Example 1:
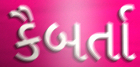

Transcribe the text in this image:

કૈબર્તા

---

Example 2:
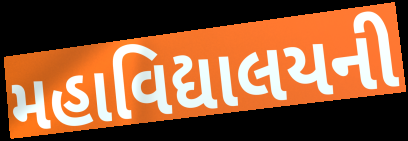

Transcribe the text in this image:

મહાવિદ્યાલયની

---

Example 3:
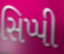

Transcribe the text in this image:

સિપ્પી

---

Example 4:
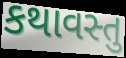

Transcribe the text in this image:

કથાવસ્તુ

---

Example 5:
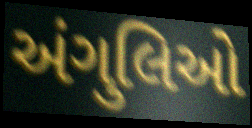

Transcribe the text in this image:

અંગુલિઓ